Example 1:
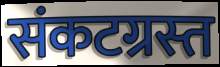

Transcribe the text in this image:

संकटग्रस्‍त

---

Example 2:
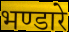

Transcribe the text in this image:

भण्डारे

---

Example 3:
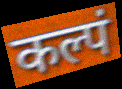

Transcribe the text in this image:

कल्पं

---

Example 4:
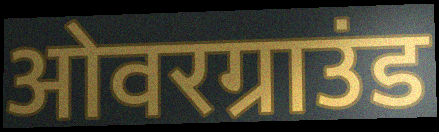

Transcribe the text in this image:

ओवरग्राउंड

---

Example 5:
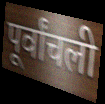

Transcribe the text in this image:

पूर्वांचली